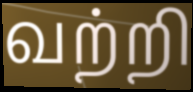
வற்றி